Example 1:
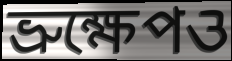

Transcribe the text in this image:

ভ্রুক্ষেপও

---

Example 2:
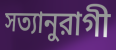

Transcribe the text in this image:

সত্যানুরাগী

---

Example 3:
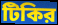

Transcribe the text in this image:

টিকির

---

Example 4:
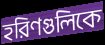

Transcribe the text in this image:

হরিণগুলিকে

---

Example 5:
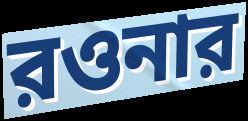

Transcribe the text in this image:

রওনার